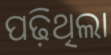
ପଢ଼ିଥିଲା